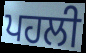
ਪਹਲੀ